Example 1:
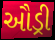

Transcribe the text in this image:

ઔડ્રી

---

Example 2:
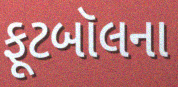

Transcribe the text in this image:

ફૂટબૉલના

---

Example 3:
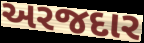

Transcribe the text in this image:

અરજદાર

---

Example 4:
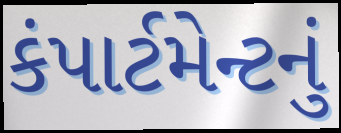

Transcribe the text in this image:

કંપાર્ટમેન્ટનું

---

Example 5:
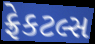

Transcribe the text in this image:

ફ્રેકટલ્સ